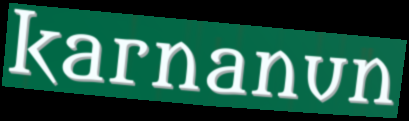
karnanun